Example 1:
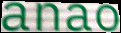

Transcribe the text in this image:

anao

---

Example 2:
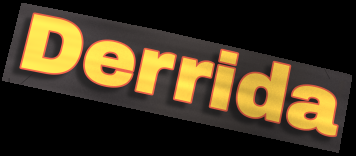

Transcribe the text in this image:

Derrida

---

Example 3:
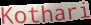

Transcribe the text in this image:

Kothari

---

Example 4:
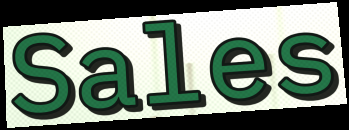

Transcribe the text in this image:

Sales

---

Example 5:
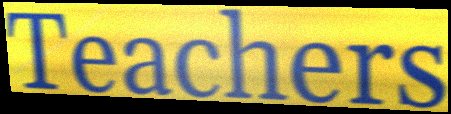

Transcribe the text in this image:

Teachers